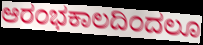
ಆರಂಭಕಾಲದಿಂದಲೂ